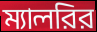
ম্যালরির